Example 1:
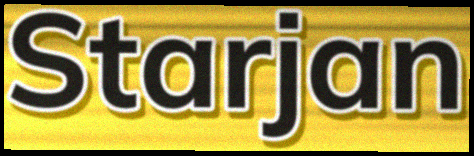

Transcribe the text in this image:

Starjan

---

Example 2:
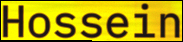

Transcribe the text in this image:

Hossein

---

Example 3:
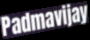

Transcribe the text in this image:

Padmavijay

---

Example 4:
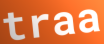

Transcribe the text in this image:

traa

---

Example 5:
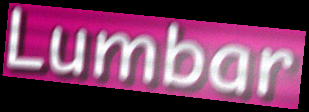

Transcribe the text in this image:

Lumbar